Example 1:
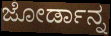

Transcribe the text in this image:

ಜೋರ್ಡಾನ್ನ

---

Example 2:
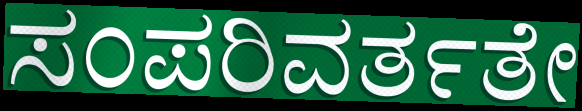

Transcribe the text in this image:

ಸಂಪರಿವರ್ತತೇ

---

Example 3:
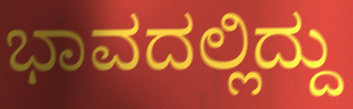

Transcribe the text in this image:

ಭಾವದಲ್ಲಿದ್ದು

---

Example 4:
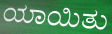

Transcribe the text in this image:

ಯಾಯಿತು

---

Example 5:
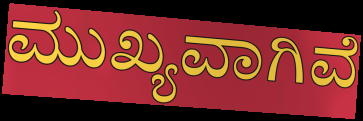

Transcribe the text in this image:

ಮುಖ್ಯವಾಗಿವೆ